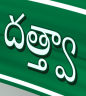
దత్త్వా